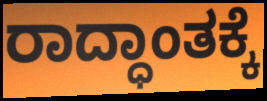
ರಾದ್ಧಾಂತಕ್ಕೆ